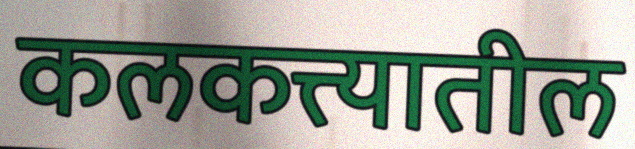
कलकत्त्यातील